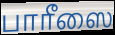
பாரீஸை